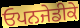
ਓਪਨਜੇਡੀਕੇ